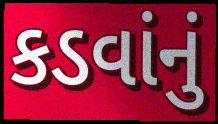
કડવાંનું